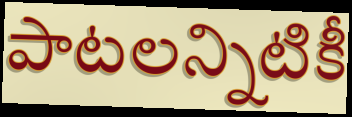
పాటలన్నిటికీ